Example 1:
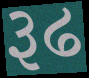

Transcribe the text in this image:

રૂઢ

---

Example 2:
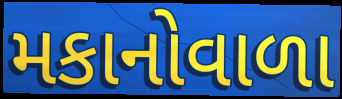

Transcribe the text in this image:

મકાનોવાળા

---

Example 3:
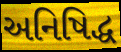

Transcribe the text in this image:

અનિષિદ્ધ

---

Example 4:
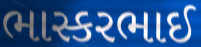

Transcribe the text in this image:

ભાસ્કરભાઈ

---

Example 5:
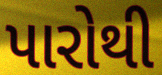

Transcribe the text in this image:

પારોથી